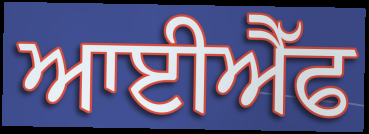
ਆਈਐੱਫ